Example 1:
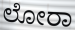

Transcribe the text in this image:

ಲೋರಾ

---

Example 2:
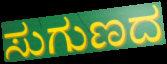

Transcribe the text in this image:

ಸುಗುಣದ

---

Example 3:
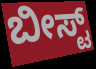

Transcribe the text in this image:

ಬೀಸ್ಟ್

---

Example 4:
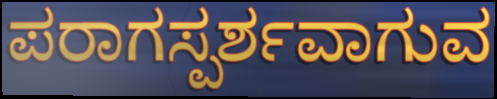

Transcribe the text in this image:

ಪರಾಗಸ್ಪರ್ಶವಾಗುವ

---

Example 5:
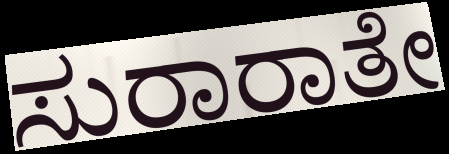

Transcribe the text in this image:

ಸುರಾರಾತೇ